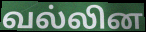
வல்லின